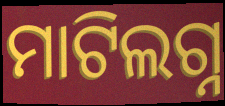
ମାଟିଲଗ୍ନ